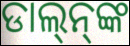
ଡାଲ୍‌ନ୍‌ଙ୍କ